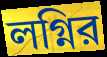
লগ্নির